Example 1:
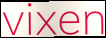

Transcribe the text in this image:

vixen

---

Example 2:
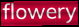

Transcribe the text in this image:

flowery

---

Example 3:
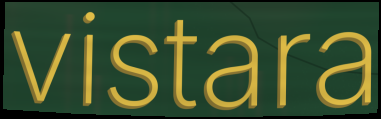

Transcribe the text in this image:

vistara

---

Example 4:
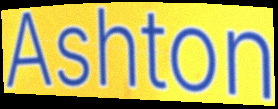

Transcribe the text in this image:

Ashton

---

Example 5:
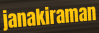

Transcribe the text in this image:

janakiraman